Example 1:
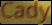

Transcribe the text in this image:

Cady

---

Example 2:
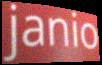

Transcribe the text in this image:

janio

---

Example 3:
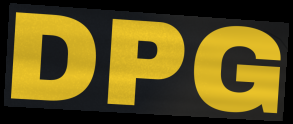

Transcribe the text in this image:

DPG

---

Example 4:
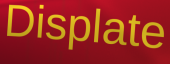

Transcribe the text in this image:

Displate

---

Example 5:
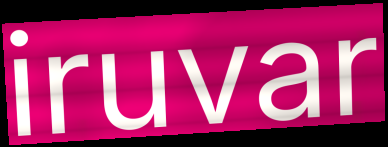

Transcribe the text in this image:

iruvar